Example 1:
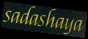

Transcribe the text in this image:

sadashaya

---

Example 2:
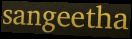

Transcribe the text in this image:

sangeetha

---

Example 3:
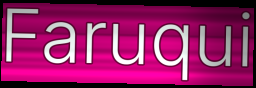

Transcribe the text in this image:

Faruqui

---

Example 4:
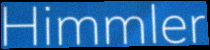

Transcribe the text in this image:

Himmler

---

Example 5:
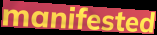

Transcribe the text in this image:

manifested